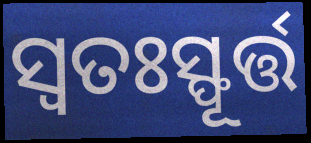
ସ୍ୱତଃସ୍ଫୂର୍ତ୍ତ